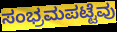
ಸಂಭ್ರಮಪಟ್ಟೆವು